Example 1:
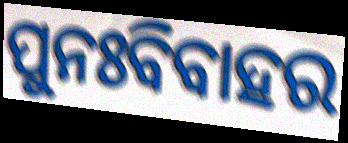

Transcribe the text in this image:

ପୁନଃବିବାହର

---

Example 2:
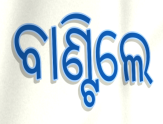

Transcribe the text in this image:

ବାଣ୍ଟିଲେ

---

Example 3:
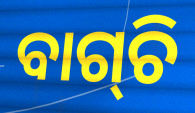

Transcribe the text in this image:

ବାଗ୍‌ଚି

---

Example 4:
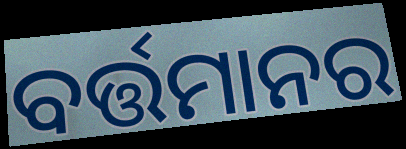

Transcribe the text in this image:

ବର୍ତ୍ତମାନର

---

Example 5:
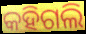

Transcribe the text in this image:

କହିଗଲି